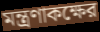
মন্ত্রণাকক্ষের